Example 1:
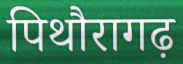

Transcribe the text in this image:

पिथौरागढ़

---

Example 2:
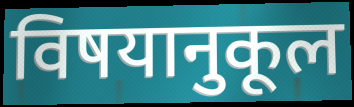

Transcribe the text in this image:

विषयानुकूल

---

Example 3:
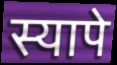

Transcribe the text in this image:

स्यापे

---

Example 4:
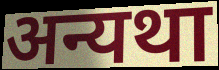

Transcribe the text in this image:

अन्यथा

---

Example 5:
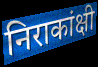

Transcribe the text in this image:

निराकांक्षी